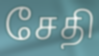
சேதி